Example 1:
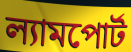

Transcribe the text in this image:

ল্যামপোর্ট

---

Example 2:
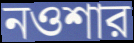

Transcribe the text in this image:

নওশার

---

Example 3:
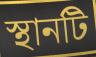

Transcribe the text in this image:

স্থানটি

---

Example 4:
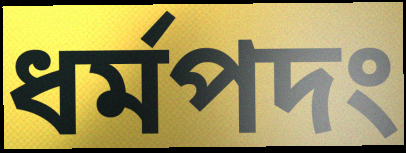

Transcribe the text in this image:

ধর্মপদং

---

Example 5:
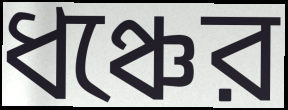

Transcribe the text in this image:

ধঞ্চের